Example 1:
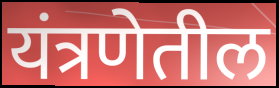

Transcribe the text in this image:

यंत्रणेतील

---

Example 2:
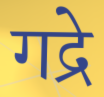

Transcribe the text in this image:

गद्रे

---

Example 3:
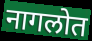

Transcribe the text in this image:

नागलोत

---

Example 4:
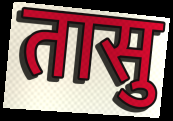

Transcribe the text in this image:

तासु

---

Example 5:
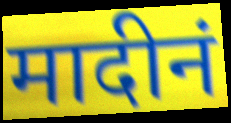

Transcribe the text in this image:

मादीनं